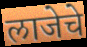
लाजेचे